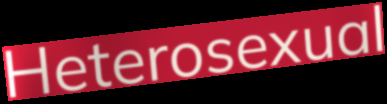
Heterosexual